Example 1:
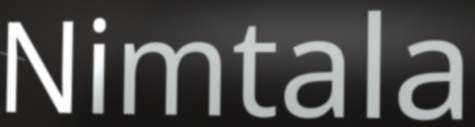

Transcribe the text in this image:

Nimtala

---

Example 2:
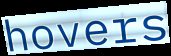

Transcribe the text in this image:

hovers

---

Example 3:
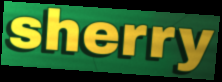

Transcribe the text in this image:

sherry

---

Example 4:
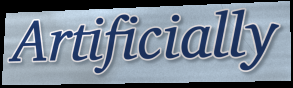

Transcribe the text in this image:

Artificially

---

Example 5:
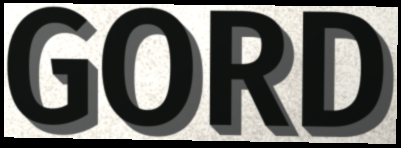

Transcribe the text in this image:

GORD